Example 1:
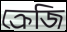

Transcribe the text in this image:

ক্রেজি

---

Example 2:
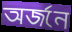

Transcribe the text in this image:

অর্জনে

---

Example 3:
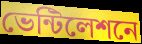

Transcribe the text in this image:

ভেন্টিলেশনে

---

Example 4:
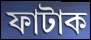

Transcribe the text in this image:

ফাটাক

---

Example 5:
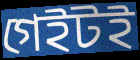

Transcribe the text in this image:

গেইটই